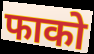
फाको